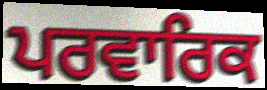
ਪਰਵਾਰਿਕ